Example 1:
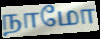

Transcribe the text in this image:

நாமோ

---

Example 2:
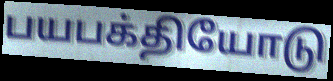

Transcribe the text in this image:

பயபக்தியோடு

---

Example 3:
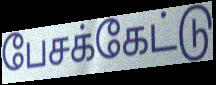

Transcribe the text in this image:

பேசக்கேட்டு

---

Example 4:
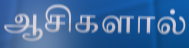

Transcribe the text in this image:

ஆசிகளால்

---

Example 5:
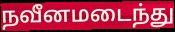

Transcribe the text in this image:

நவீனமடைந்து